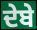
ਦੇਬੇ